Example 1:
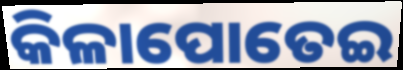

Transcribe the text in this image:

କିଳାପୋତେଇ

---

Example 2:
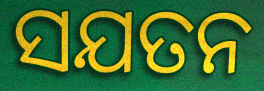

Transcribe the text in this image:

ସଯତନ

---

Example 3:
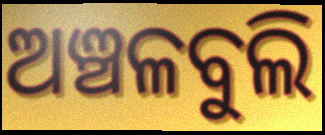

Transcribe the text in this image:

ଅଞ୍ଚଳବୁଲି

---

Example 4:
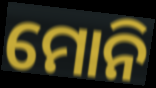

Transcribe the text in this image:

ମୋନି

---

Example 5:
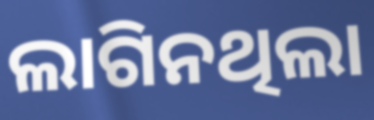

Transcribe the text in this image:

ଲାଗିନଥିଲା